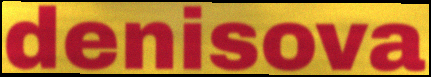
denisova